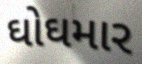
ઘોઘમાર